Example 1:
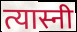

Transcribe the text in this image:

त्यास्नी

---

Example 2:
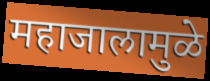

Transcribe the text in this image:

महाजालामुळे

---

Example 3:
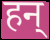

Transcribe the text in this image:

हन्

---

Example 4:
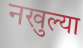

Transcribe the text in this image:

नखुल्या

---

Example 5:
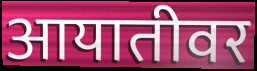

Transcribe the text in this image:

आयातीवर